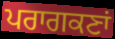
ਪਰਾਗਕਣਾਂ